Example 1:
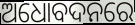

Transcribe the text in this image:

ଅଧୋବଦନରେ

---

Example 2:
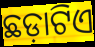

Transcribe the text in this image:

ଛଡ଼ାଟିଏ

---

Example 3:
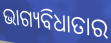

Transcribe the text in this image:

ଭାଗ୍ୟବିଧାତାର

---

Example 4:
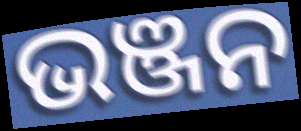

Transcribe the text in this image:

ଭଞ୍ଜନ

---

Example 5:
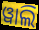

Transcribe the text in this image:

ୱାଲି